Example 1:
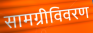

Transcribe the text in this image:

सामग्रीविवरण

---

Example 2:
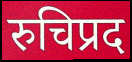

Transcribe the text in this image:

रुचिप्रद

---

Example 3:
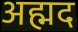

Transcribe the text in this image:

अह्मद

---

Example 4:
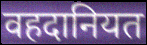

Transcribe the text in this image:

वहदानियत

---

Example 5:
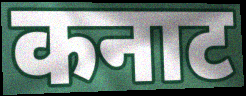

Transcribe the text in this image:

कनाट